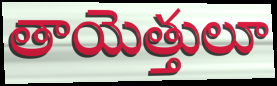
తాయెత్తులూ